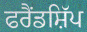
ਫਰੈਂਡਸ਼ਿੱਪ